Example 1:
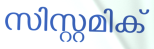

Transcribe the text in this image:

സിസ്റ്റമിക്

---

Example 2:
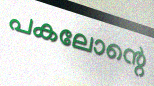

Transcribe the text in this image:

പകലോന്റെ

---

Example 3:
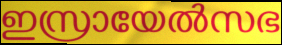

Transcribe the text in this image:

ഇസ്രായേൽസഭ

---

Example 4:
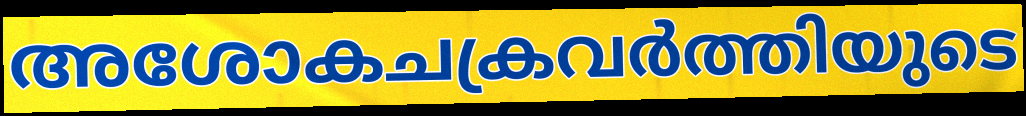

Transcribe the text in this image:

അശോകചക്രവർത്തിയുടെ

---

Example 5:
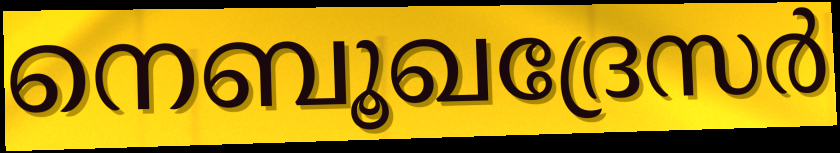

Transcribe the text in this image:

നെബൂഖദ്രേസർ